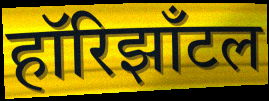
हॉरिझाँटल